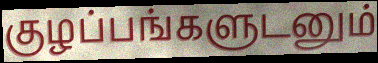
குழப்பங்களுடனும்